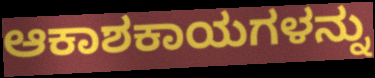
ಆಕಾಶಕಾಯಗಳನ್ನು